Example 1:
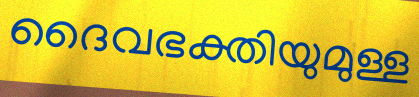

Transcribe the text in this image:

ദൈവഭക്തിയുമുള്ള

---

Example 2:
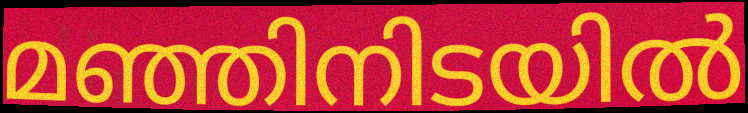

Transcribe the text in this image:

മഞ്ഞിനിടയിൽ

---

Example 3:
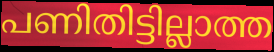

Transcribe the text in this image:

പണിതിട്ടില്ലാത്ത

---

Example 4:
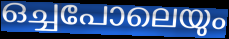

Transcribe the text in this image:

ഒച്ചപോലെയും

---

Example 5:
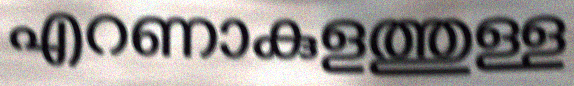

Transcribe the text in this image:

എറണാകുളത്തുള്ള